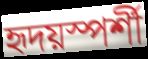
হৃদয়স্পর্শী